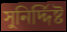
সুনির্দ্দিষ্ট